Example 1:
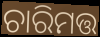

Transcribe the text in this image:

ଚାରିମତ୍ତ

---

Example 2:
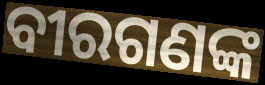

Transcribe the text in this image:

ବୀରଗଣଙ୍କ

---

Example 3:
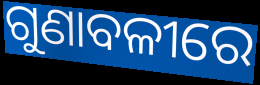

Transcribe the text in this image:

ଗୁଣାବଳୀରେ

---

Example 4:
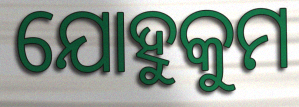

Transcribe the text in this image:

ଯୋହୁକୁମ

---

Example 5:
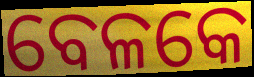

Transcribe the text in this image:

ବେଳକେ